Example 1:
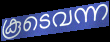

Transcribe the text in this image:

കൂടെവന്ന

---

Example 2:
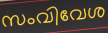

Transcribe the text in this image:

സംവിവേശ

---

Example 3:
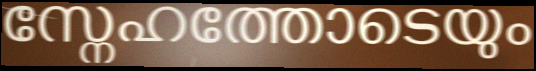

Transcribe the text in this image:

സ്നേഹത്തോടെയും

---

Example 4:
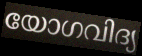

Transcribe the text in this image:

യോഗവിദ്യ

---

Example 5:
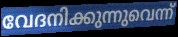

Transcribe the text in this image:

വേദനിക്കുന്നുവെന്ന്